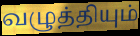
வழுத்தியும்